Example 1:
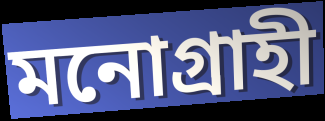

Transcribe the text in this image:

মনোগ্ৰাহী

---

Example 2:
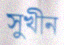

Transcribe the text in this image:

সুখীন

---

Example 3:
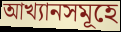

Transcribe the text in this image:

আখ্যানসমূহে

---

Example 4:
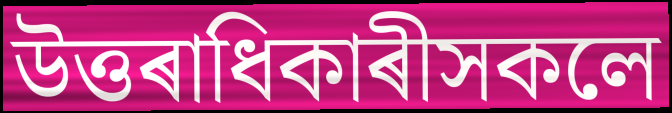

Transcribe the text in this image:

উত্তৰাধিকাৰীসকলে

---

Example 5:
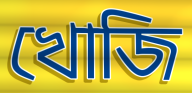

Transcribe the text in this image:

খোজি